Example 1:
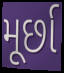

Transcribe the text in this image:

મૂર્છા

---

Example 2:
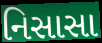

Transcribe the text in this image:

નિસાસા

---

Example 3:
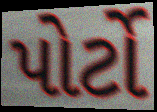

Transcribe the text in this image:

પોર્ટો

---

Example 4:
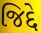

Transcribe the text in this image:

જિદ્દે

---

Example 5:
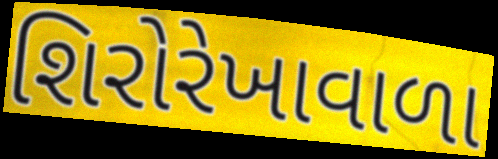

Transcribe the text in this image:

શિરોરેખાવાળા